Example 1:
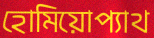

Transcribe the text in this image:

হোমিয়োপ্যাথ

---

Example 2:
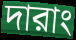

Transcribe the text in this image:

দারাং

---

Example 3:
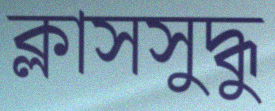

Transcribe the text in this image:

ক্লাসসুদ্ধু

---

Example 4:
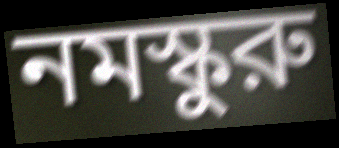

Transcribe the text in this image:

নমস্কুরু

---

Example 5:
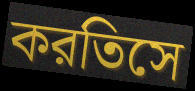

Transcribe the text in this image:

করতিসে